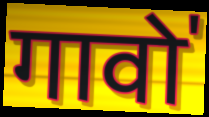
गावो॑